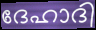
ദേഹാദി